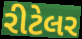
રીટેલર